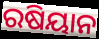
ରଷିୟାନ